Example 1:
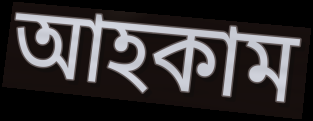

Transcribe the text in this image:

আহকাম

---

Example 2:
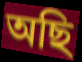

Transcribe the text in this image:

অছি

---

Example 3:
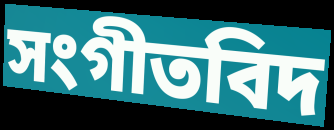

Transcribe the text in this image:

সংগীতবিদ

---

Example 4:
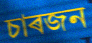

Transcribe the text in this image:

চাৰজন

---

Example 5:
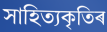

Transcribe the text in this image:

সাহিত্য়কৃতিৰ